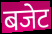
बजेट